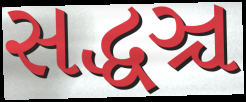
સદ્ધઞ્ચ